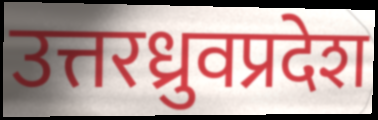
उत्तरध्रुवप्रदेश